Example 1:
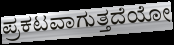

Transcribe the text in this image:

ಪ್ರಕಟವಾಗುತ್ತದೆಯೋ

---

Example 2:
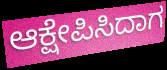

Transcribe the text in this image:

ಆಕ್ಷೇಪಿಸಿದಾಗ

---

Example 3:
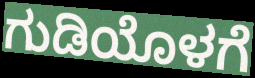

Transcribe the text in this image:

ಗುಡಿಯೊಳಗೆ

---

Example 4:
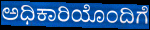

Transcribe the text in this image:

ಅಧಿಕಾರಿಯೊಂದಿಗೆ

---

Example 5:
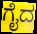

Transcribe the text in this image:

ಗೈದ